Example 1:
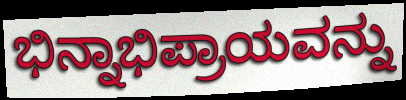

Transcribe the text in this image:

ಭಿನ್ನಾಭಿಪ್ರಾಯವನ್ನು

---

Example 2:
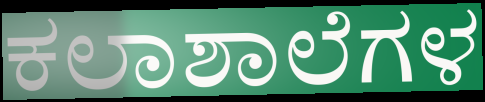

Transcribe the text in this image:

ಕಲಾಶಾಲೆಗಳ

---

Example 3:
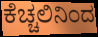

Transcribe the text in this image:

ಕೆಚ್ಚಲಿನಿಂದ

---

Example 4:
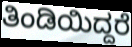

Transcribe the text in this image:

ತಿಂಡಿಯಿದ್ದರೆ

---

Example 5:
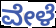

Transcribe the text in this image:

ವೇಳೆ